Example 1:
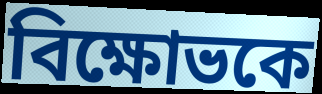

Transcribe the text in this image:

বিক্ষোভকে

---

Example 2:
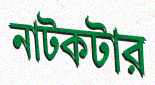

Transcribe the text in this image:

নাটকটার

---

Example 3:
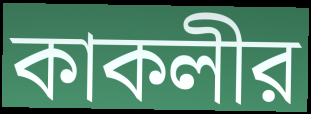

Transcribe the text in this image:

কাকলীর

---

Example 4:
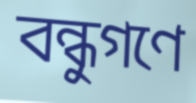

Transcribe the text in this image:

বন্ধুগণে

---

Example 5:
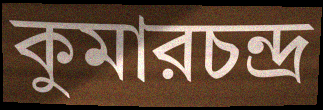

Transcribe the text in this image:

কুমারচন্দ্র